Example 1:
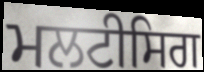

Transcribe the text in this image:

ਮਲਟੀਸਿਗ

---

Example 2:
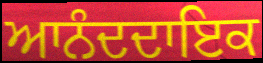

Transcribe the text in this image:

ਆਨੰਦਦਾਇਕ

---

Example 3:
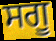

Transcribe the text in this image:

ਸਗੂ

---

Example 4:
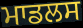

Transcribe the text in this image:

ਮਾਡਲਸ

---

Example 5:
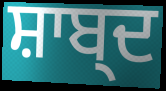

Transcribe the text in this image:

ਸ਼ਾਬ੍ਦ